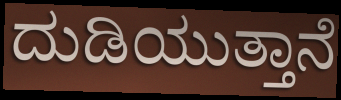
ದುಡಿಯುತ್ತಾನೆ